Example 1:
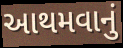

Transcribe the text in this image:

આથમવાનું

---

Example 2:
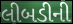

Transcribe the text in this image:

લીબડીની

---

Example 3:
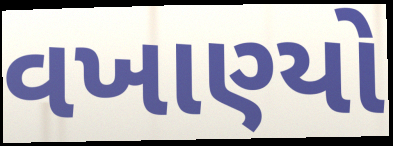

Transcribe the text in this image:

વખાણ્યો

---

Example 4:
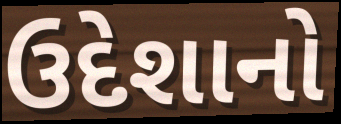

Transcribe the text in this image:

ઉદેશાનો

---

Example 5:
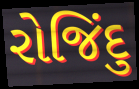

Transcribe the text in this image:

રોજિંદુ